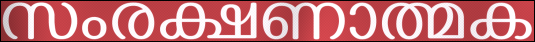
സംരക്ഷണാത്മക